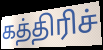
கத்திரிச்